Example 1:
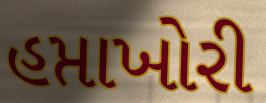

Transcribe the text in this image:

હપ્તાખોરી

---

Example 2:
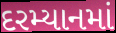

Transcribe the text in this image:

દરમ્યાનમાં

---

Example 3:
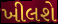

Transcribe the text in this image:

ખીલશે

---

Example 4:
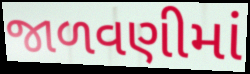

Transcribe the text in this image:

જાળવણીમાં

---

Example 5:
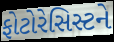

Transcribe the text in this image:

ફોટોરેસિસ્ટને